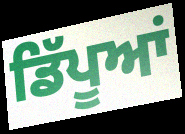
ਡਿੱਪੂਆਂ